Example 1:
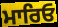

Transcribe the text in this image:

ਮਾਰਿਓ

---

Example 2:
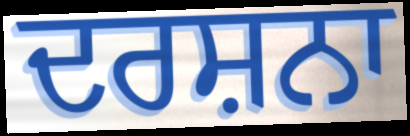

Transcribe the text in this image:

ਦਰਸ਼ਨਾ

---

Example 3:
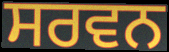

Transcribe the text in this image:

ਸਰਵਨ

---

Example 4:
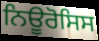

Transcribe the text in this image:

ਨਿਊਰੋਸਿਸ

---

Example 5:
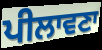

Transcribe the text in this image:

ਪੀਲਾਵਣਾ